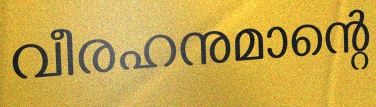
വീരഹനുമാന്റെ